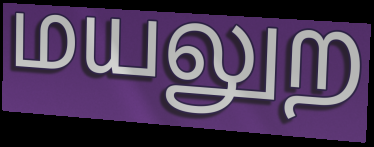
மயலுற